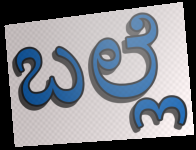
ಬಲ್ಲೆ